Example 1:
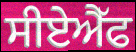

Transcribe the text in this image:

ਸੀਏਐੱਫ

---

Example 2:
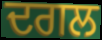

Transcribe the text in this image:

ਦਗਲ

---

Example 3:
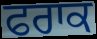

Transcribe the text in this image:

ਫਰਾਕ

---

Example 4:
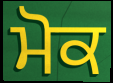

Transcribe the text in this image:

ਮੋਕ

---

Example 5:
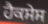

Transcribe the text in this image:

ਹੈਕਸੇਸ